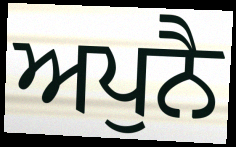
ਅਪੁਨੈ